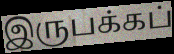
இருபக்கப்